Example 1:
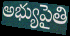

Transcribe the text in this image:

అభ్యుపైతి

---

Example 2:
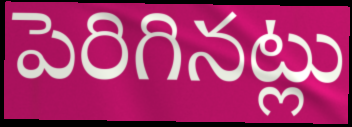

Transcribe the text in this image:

పెరిగినట్లు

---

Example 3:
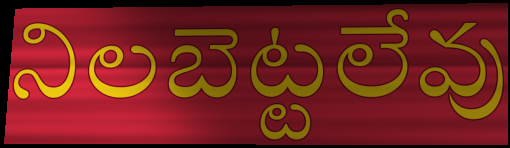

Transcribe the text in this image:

నిలబెట్టలేవు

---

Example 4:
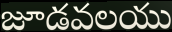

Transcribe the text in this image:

జూడవలయు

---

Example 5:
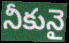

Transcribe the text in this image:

నీకునై